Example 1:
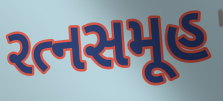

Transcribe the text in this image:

રત્નસમૂહ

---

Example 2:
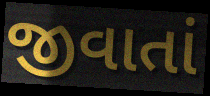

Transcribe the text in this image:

જીવાતાં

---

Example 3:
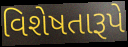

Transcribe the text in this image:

વિશેષતારૂપે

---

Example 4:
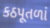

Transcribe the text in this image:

કઠપૂતળાં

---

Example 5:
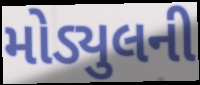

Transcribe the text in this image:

મોડ્યુલની